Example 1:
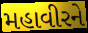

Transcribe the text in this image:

મહાવીરને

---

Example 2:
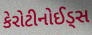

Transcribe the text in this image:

કેરોટીનોઈડ્સ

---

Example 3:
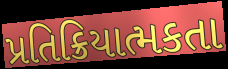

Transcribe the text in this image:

પ્રતિક્રિયાત્મકતા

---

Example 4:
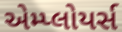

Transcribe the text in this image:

એમ્પ્લોયર્સ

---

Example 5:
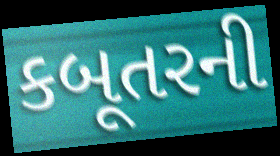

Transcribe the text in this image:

કબૂતરની